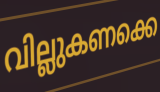
വില്ലുകണക്കെ